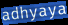
adhyaya